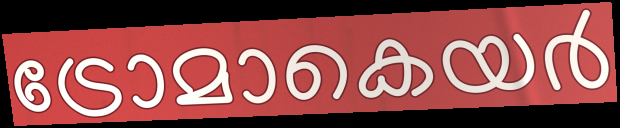
ട്രോമാകെയർ